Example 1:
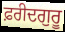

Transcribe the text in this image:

ਫ਼ਰੀਦਗੁਰੂ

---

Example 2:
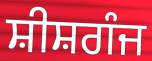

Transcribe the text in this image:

ਸ਼ੀਸ਼ਗੰਜ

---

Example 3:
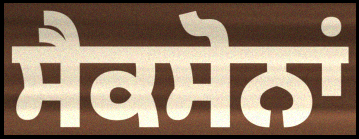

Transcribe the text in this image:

ਸੈਕਸੋਨਾਂ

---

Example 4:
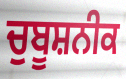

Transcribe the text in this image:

ਚੁਬੂਸ਼ਨੀਕ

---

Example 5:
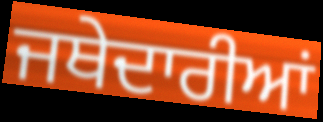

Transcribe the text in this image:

ਜਥੇਦਾਰੀਆਂ